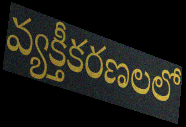
వ్యక్తీకరణలలో